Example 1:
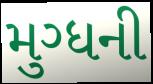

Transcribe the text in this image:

મુગ્ધની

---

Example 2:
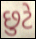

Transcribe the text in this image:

છુટે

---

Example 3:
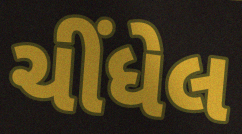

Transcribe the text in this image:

ચીંધેલ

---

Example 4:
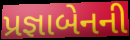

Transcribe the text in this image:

પ્રજ્ઞાબેનની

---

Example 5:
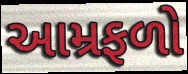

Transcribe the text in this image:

આમ્રફળો